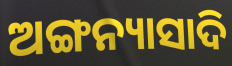
ଅଙ୍ଗନ୍ୟାସାଦି